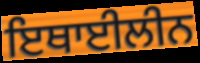
ਇਥਾਈਲੀਨ